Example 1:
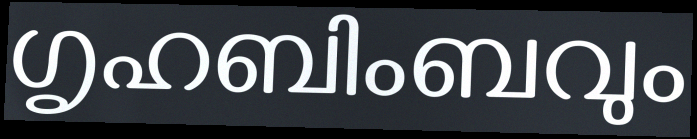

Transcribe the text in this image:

ഗൃഹബിംബവും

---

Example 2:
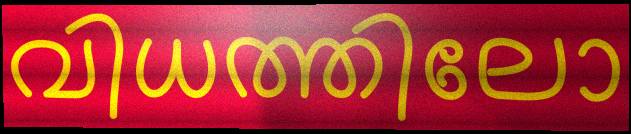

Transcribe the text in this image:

വിധത്തിലോ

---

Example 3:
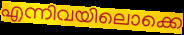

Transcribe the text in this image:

എന്നിവയിലൊക്കെ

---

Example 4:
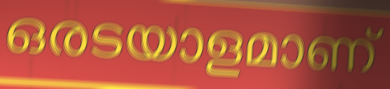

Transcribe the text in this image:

ഒരടയാളമാണ്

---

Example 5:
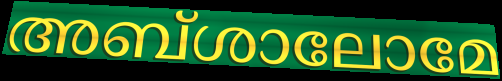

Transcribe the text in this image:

അബ്ശാലോമേ